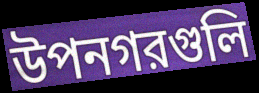
উপনগরগুলি